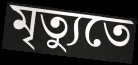
মৃত্যুতে